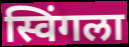
स्विंगला